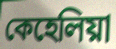
কেহেলিয়া